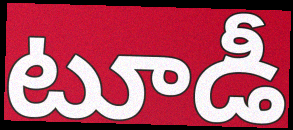
టూడీ